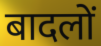
बादलों